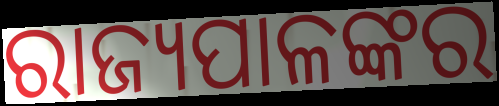
ରାଜ୍ୟପାଳଙ୍କର